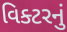
વિક્ટરનું